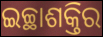
ଇଚ୍ଛାଶକ୍ତିର